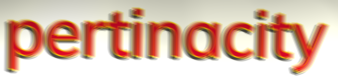
pertinacity